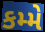
કમ્મે